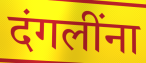
दंगलींना